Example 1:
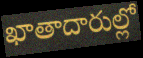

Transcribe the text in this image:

ఖాతాదారుల్లో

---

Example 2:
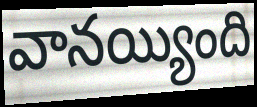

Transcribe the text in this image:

వానయ్యింది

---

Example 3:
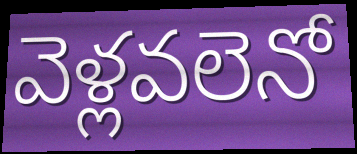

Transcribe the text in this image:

వెళ్లవలెనో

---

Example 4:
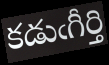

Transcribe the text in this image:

కడుఁగీర్తి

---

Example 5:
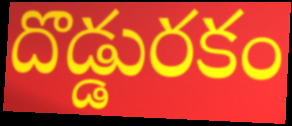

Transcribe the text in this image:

దొడ్డురకం